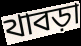
থাবড়া